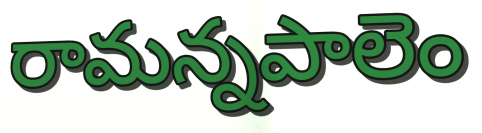
రామన్నపాలెం